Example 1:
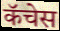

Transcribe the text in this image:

कॅचेस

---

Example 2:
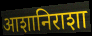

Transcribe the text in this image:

आशानिराशा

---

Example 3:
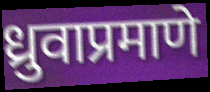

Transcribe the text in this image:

ध्रुवाप्रमाणे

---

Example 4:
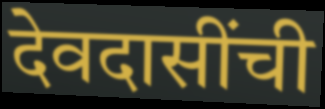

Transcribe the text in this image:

देवदासींची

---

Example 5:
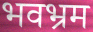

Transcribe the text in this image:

भवभ्रम